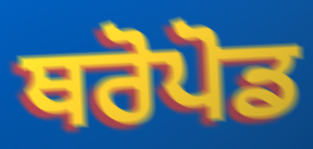
ਥਰੋਪੋਡ